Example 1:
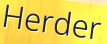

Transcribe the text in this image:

Herder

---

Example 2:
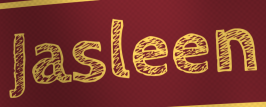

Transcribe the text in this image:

Jasleen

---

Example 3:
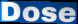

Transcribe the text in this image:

Dose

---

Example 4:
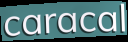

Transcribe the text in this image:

caracal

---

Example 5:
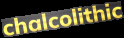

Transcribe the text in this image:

chalcolithic